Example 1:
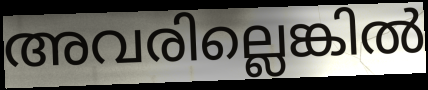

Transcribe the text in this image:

അവരില്ലെങ്കിൽ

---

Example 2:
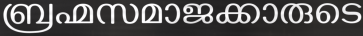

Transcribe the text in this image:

ബ്രഹ്മസമാജക്കാരുടെ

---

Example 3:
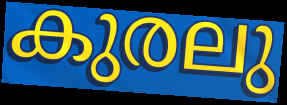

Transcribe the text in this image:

കുരലു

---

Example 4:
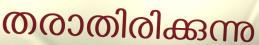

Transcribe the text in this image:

തരാതിരിക്കുന്നു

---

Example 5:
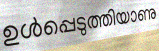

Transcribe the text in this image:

ഉൾപ്പെടുത്തിയാണു